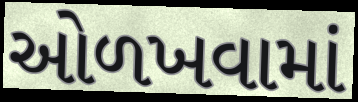
ઓળખવામાં